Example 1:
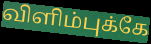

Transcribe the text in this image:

விளிம்புக்கே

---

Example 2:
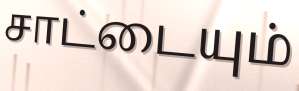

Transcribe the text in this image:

சாட்டையும்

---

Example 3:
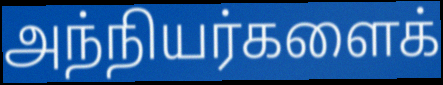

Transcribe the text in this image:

அந்நியர்களைக்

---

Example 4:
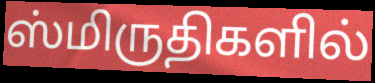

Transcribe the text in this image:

ஸ்மிருதிகளில்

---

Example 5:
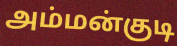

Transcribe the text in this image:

அம்மன்குடி